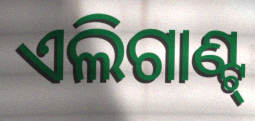
ଏଲିଗାଣ୍ଟ୍